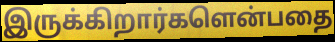
இருக்கிறார்களென்பதை